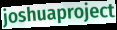
joshuaproject